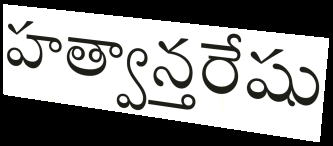
హత్వాన్తరేషు